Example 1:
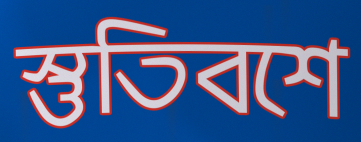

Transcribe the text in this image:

স্তুতিবশে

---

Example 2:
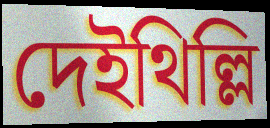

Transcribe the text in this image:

দেইথিল্লি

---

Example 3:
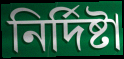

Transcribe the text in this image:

নির্দিষ্টা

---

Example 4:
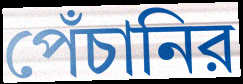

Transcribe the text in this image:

পেঁচানির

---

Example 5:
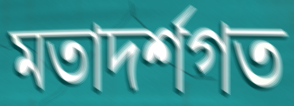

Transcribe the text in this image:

মতাদর্শগত